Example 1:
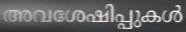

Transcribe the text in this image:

അവശേഷിപ്പുകൾ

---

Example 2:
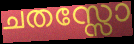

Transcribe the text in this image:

ചതസ്സോ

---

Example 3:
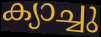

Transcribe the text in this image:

ക്യാച്ചു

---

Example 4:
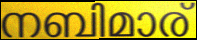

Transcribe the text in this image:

നബിമാര്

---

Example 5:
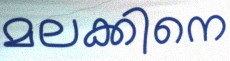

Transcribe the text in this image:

മലക്കിനെ